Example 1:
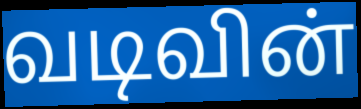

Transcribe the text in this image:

வடிவின்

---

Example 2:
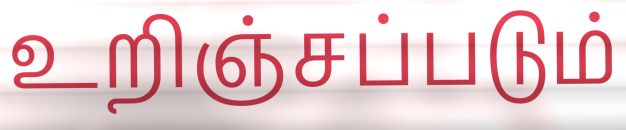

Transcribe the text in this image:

உறிஞ்சப்படும்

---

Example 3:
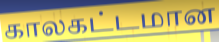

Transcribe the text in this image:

காலகட்டமான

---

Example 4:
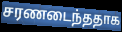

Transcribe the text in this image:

சரணடைந்ததாக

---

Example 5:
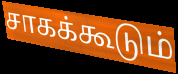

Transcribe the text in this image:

சாகக்கூடும்